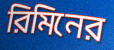
রিমিনের